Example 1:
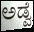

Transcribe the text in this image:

ಅಡ್ವೆ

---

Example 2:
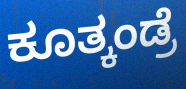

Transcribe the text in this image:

ಕೂತ್ಕಂಡ್ರೆ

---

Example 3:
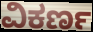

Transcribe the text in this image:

ವಿಕರ್ಣ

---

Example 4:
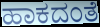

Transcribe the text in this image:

ಹಾಕದಂತೆ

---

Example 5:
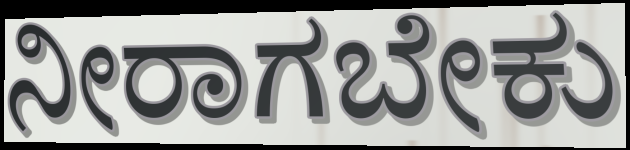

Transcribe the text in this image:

ನೀರಾಗಬೇಕು